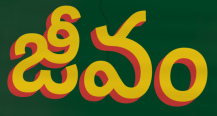
జీవం